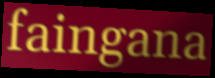
faingana